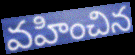
వహించిన